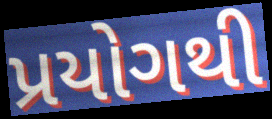
પ્રયોગથી